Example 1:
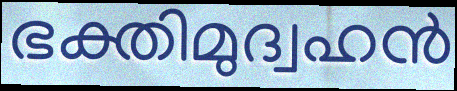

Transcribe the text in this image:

ഭക്തിമുദ്വഹൻ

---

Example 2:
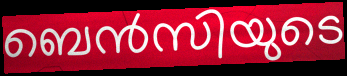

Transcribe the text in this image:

ബെൻസിയുടെ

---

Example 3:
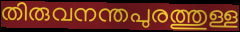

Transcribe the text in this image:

തിരുവനന്തപുരത്തുള്ള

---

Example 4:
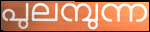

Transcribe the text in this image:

പുലമ്പുന്ന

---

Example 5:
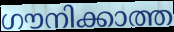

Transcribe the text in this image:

ഗൗനിക്കാത്ത